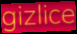
gizlice